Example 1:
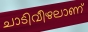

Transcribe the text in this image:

ചാടിവീഴലാണ്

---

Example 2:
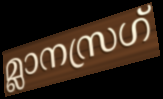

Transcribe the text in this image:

മ്ലാനസ്രഗ്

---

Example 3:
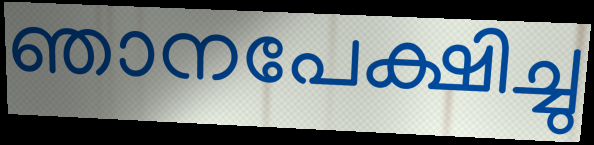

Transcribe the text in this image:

ഞാനപേക്ഷിച്ചു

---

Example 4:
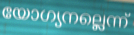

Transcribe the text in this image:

യോഗ്യനല്ലെന്ന്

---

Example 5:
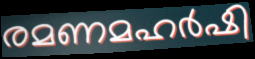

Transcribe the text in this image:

രമണമഹർഷി